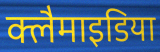
क्लैमाइडिया